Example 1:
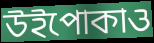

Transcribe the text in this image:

উইপোকাও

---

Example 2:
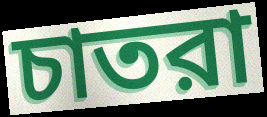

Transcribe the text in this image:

চাতরা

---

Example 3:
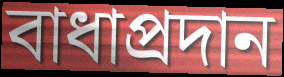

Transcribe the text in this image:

বাধাপ্রদান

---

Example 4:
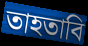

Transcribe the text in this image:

তাহতাবি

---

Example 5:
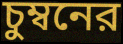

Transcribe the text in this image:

চুম্বনের